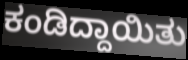
ಕಂಡಿದ್ದಾಯಿತು